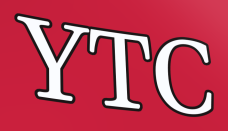
YTC